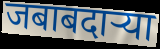
जबाबदाऱ्या